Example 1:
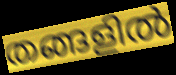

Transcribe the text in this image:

തങ്ങളിൽ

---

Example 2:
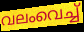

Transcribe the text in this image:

വലംവെച്ച്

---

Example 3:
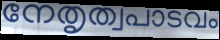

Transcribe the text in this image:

നേതൃത്വപാടവം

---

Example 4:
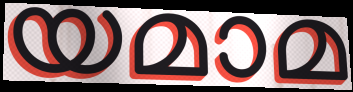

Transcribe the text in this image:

യമാമ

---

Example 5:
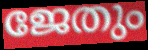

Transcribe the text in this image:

ജേതും